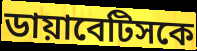
ডায়াবেটিসকে